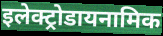
इलेक्ट्रोडायनामिक